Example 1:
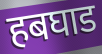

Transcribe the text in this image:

हबघाड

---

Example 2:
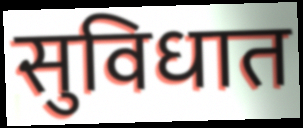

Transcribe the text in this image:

सुविधात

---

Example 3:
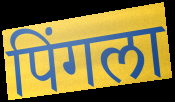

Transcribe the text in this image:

पिंगला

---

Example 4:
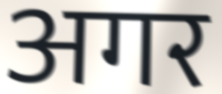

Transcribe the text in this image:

अगर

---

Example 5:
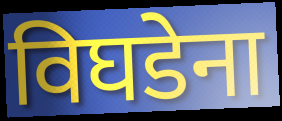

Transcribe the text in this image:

विघडेना